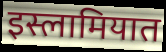
इस्लामियात